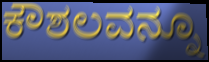
ಕೌಶಲವನ್ನೂ